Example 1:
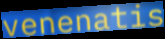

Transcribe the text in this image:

venenatis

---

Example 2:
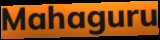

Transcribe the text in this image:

Mahaguru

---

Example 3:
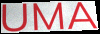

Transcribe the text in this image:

UMA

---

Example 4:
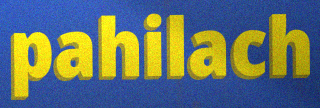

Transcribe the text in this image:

pahilach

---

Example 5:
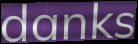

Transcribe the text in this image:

danks